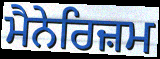
ਮੈਨੇਰਿਜ਼ਮ